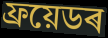
ফ্ৰয়েডৰ